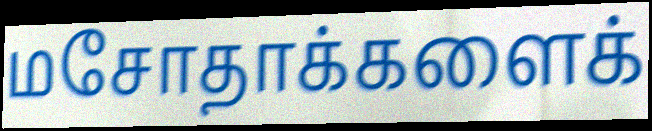
மசோதாக்களைக்